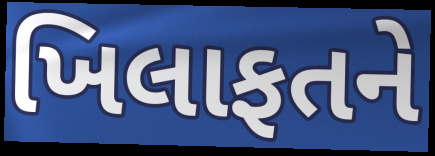
ખિલાફતને